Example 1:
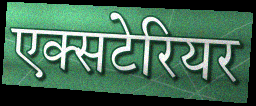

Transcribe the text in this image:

एक्सटेरियर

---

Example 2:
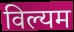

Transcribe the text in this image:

विल्यम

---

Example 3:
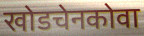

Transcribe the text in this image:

खोडचेनकोवा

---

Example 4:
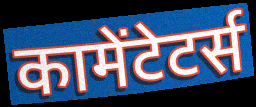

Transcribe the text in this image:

कामेंटेटर्स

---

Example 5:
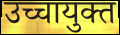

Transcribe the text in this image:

उच्चायुक्त